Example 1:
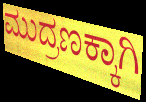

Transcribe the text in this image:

ಮುದ್ರಣಕ್ಕಾಗಿ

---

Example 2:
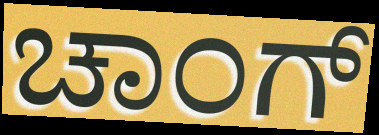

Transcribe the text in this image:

ಚಾಂಗ್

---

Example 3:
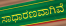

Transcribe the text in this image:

ಸಾಧಾರಣವಾಗಿವೆ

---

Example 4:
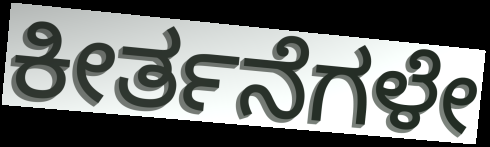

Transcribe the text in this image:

ಕೀರ್ತನೆಗಳೇ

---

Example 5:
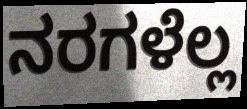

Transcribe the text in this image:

ನರಗಳೆಲ್ಲ